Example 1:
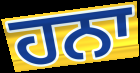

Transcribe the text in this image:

ਹਨਾ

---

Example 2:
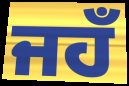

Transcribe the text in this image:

ਜਹਁ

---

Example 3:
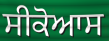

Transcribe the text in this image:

ਸੀਕੋਆਸ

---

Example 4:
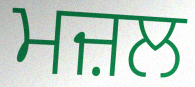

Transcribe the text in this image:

ਮਜ਼ਲ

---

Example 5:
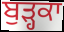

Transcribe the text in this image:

ਬੁੜ੍ਹਕਾ